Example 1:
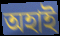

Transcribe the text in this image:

অহাই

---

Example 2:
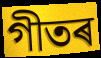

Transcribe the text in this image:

গীতৰ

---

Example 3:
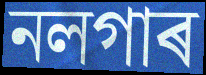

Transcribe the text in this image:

নলগাৰ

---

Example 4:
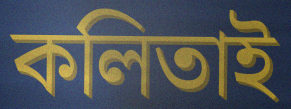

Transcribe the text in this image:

কলিতাই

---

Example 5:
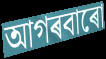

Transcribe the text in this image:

আগৰবাৰো